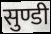
सुण्डी